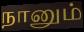
நானும்